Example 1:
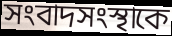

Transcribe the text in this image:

সংবাদসংস্থাকে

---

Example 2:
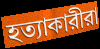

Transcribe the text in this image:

হত্যাকারীরা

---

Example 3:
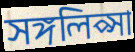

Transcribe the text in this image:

সঙ্গলিপ্সা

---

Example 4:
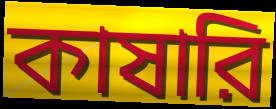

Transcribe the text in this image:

কাষারি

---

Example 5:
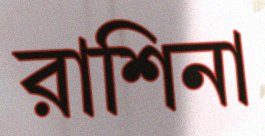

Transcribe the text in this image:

রাশিনা